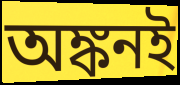
অঙ্কনই